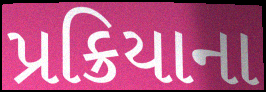
પ્રક્રિયાના